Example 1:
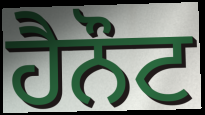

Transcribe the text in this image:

ਹੈਨੌਟ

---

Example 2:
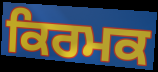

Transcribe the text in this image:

ਕਿਰਮਕ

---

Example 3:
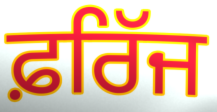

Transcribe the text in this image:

ਫ਼ਰਿੱਜ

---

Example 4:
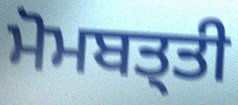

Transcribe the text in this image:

ਮੋਮਬਤ੍ਤੀ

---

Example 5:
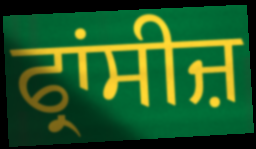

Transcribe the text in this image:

ਫ੍ਰਾਂਸੀਜ਼